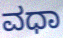
ವಧಾ